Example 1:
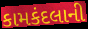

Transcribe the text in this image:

કામકંદલાની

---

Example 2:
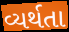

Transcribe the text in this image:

વ્યર્થતા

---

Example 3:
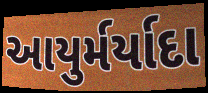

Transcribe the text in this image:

આયુર્મર્યાદા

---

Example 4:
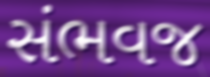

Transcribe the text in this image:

સંભવજ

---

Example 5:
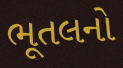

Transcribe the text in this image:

ભૂતલનો